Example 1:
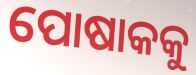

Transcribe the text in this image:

ପୋଷାକକୁ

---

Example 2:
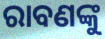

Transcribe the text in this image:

ରାବଣଙ୍କୁ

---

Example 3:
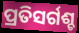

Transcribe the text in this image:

ପ୍ରତିସର୍ଗଶ୍ଚ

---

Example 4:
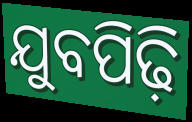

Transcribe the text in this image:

ଯୁବପିଢ଼ି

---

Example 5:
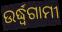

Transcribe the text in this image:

ଉର୍ଦ୍ଧ୍ୱଗାମୀ